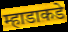
म्हाडाकडे